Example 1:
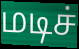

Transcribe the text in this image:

மடிச்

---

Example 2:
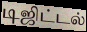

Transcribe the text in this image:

டிஜிட்டல்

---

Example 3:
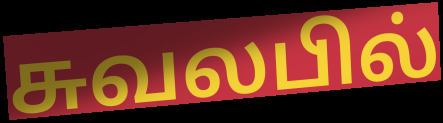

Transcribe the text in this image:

சுவலபில்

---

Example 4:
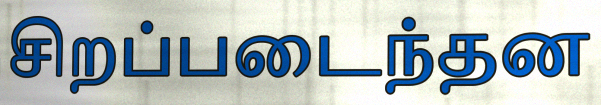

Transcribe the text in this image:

சிறப்படைந்தன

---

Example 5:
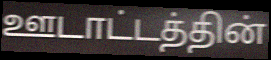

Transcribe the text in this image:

ஊடாட்டத்தின்